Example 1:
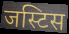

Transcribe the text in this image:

जस्टिस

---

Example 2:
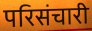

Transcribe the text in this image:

परिसंचारी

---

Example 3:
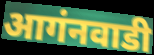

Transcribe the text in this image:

आगंनवाडी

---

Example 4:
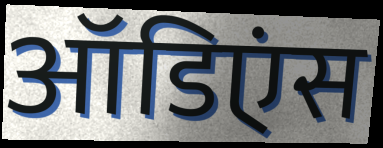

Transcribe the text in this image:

ऑडिएंस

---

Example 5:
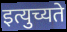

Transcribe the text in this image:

इत्युच्यते